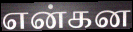
என்கன